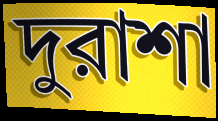
দুরাশা